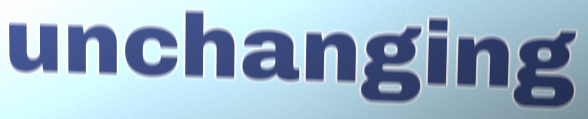
unchanging